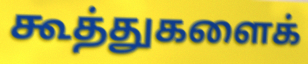
கூத்துகளைக்